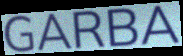
GARBA